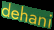
dehani